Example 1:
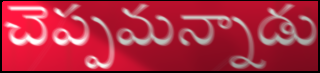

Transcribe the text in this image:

చెప్పమన్నాడు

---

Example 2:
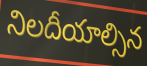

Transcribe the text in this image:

నిలదీయాల్సిన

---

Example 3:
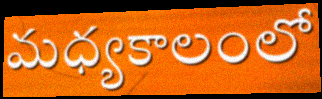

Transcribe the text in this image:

మధ్యకాలంలో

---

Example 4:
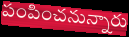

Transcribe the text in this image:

పంపించనున్నారు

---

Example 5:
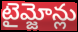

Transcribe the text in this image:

టైమ్జోన్లు